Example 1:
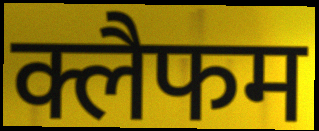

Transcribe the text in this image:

क्लैफम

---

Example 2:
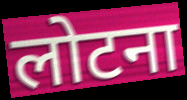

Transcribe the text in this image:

लोटना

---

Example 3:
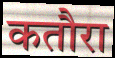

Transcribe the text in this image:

कतौरा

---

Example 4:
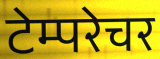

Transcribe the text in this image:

टेम्परेचर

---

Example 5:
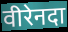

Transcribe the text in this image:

वीरेनदा